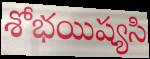
శోభయిష్యసి